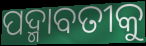
ପଦ୍ମାବତୀକୁ